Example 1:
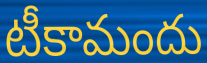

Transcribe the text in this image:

టీకామందు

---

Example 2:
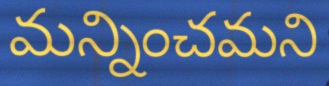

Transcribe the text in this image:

మన్నించమని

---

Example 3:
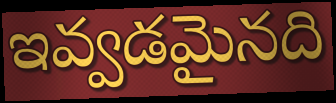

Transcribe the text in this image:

ఇవ్వడమైనది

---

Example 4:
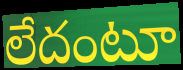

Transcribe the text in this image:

లేదంటూ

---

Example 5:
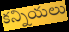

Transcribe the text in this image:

కన్నియలు